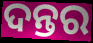
ଦନ୍ତର